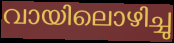
വായിലൊഴിച്ചു